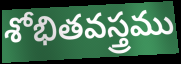
శోభితవస్త్రము